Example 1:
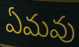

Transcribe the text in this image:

ఏమవు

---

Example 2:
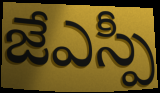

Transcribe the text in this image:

జేఎస్పీ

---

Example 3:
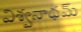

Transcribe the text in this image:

విశ్వనాధమ్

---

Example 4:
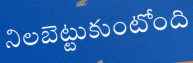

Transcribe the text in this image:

నిలబెట్టుకుంటోంది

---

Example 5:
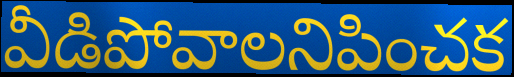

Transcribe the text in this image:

వీడిపోవాలనిపించక